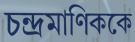
চন্দ্রমাণিককে